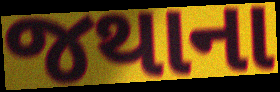
જથાના